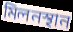
মিলনস্থান